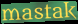
mastak